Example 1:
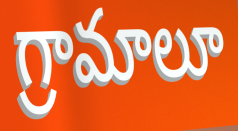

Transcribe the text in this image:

గ్రామాలూ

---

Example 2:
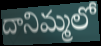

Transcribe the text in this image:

దానిమ్మలో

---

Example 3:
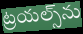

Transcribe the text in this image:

ట్రయల్స్‌ను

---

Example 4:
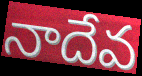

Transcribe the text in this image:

నాదేవ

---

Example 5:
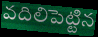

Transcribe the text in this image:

వదిలిపెట్టిన